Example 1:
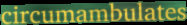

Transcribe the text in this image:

circumambulates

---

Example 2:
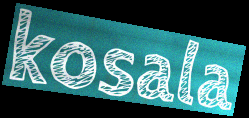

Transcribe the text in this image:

kosala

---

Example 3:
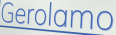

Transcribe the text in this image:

Gerolamo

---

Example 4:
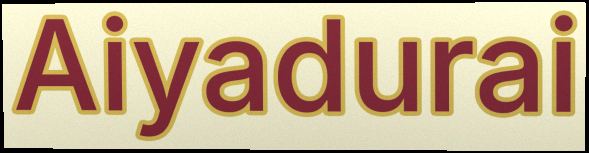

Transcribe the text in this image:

Aiyadurai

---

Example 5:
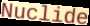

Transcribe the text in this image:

Nuclide